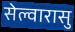
सेल्वारासु